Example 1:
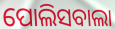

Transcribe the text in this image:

ପୋଲିସବାଲା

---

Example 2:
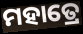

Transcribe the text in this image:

ମହାତ୍ରେ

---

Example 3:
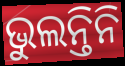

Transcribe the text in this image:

ଭୁଲନ୍ତିନି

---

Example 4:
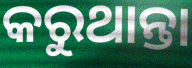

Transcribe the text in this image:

କରୁଥାନ୍ତା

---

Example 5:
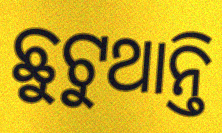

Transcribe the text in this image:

ଛୁଟୁଥାନ୍ତି